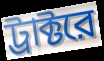
ট্রাক্টরে